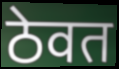
ठेवत